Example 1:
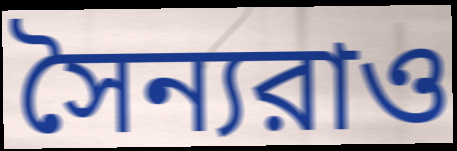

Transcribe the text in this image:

সৈন্যরাও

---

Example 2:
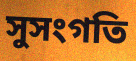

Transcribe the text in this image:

সুসংগতি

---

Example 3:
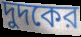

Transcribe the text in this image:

দুদকের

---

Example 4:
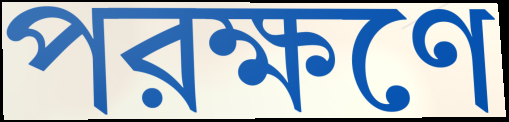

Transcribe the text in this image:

পরক্ষণে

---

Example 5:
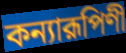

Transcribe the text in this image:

কন্যারূপিণী